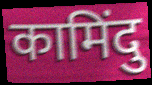
कामिंदु